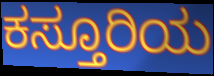
ಕಸ್ತೂರಿಯ